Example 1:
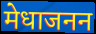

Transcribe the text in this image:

मेधाजनन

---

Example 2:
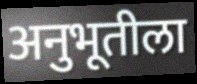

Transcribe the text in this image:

अनुभूतीला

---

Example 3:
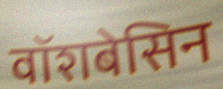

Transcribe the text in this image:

वॉशबेसिन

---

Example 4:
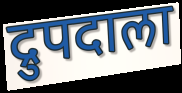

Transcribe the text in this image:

द्रुपदाला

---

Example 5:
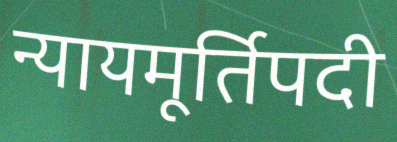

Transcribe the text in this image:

न्यायमूर्तिपदी